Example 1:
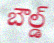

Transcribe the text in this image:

బౌల్డ్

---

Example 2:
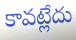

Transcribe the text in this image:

కావట్లేదు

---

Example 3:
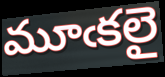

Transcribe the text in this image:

మూఁకలై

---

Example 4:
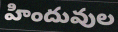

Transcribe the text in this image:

హిందువుల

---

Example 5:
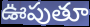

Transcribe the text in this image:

ఊపుతూ